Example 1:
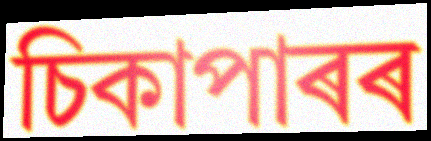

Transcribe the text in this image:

চিকাপাৰৰ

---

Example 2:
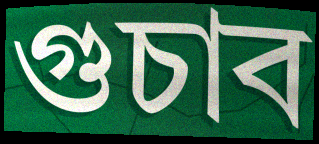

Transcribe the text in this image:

গুচাব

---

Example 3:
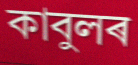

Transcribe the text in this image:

কাবুলৰ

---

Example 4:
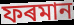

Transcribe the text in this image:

ফৰমান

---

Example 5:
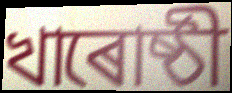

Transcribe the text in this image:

খাৰোষ্ঠী